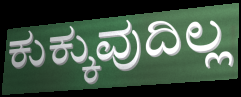
ಕುಕ್ಕುವುದಿಲ್ಲ